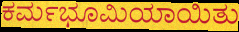
ಕರ್ಮಭೂಮಿಯಾಯಿತು